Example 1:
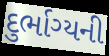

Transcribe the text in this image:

દુર્ભાગ્યની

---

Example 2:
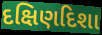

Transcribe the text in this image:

દક્ષિણદિશા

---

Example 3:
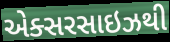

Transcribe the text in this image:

એક્સરસાઇઝથી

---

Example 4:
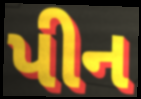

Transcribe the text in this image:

પીન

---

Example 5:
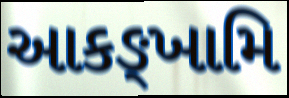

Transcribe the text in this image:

આકઙ્ખામિ